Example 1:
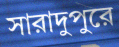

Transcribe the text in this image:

সারাদুপুরে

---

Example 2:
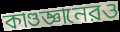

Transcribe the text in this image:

কাণ্ডজ্ঞানেরও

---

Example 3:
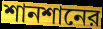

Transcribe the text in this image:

শানশানের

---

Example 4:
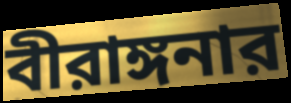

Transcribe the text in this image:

বীরাঙ্গনার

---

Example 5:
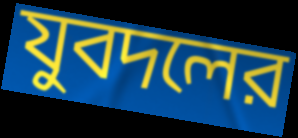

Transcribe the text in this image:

যুবদলের